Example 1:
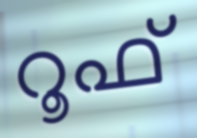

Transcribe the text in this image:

റൂഫ്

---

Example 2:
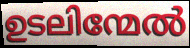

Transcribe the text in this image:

ഉടലിന്മേൽ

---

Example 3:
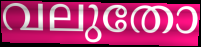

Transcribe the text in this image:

വലുതോ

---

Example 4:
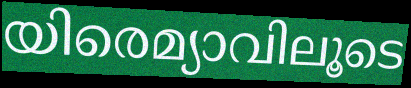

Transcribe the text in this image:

യിരെമ്യാവിലൂടെ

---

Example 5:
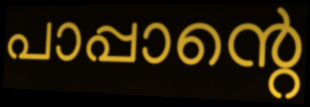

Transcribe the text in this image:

പാപ്പാന്റെ